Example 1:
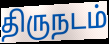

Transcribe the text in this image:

திருநடம்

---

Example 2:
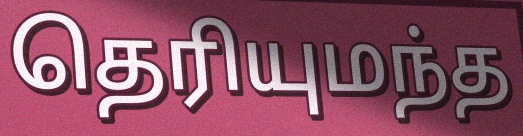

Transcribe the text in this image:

தெரியுமந்த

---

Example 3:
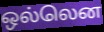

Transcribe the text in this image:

ஒல்லென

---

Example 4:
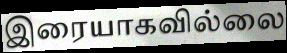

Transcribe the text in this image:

இரையாகவில்லை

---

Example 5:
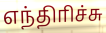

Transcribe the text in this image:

எந்திரிச்சு